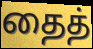
தைத்